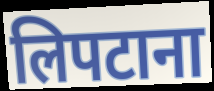
लिपटाना